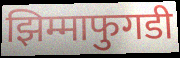
झिम्माफुगडी